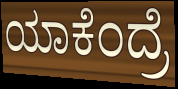
ಯಾಕೆಂದ್ರೆ